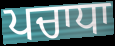
ਪਚਾਧਾ